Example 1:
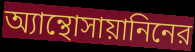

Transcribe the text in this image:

অ্যান্থোসায়ানিনের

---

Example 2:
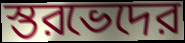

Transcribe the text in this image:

স্তরভেদের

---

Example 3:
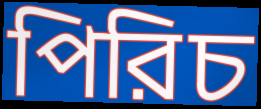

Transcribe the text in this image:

পিরিচ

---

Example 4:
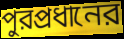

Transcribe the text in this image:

পুরপ্রধানের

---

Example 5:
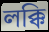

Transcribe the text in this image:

লক্কি